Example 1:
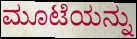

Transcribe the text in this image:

ಮೂಟೆಯನ್ನು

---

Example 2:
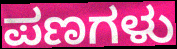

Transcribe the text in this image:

ಪಣಗಳು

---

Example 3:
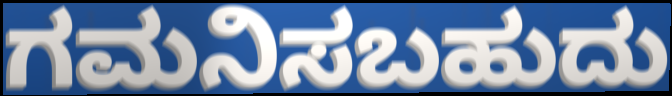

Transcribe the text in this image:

ಗಮನಿಸಬಹುದು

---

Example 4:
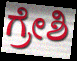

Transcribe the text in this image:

ಗ್ರೇಶಿ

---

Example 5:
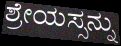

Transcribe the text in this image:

ಶ್ರೇಯಸ್ಸನ್ನು